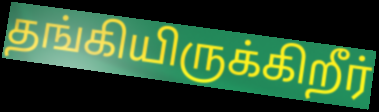
தங்கியிருக்கிறீர்